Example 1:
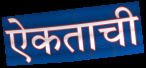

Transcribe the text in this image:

ऐकताची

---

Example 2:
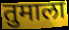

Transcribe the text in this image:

तुमाला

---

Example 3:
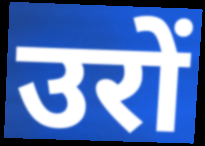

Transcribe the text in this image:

उरों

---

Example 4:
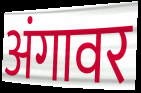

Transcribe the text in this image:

अंगावर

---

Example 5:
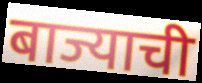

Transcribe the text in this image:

बाज्याची